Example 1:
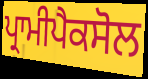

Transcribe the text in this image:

ਪ੍ਰਾਮੀਪੈਕਸੋਲ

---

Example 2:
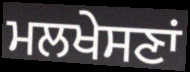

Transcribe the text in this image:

ਮਲਖੇਸਣਾਂ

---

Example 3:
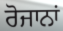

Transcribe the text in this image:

ਰੋਜਾਨਾਂ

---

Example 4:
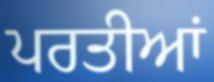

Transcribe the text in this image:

ਪਰਤੀਆਂ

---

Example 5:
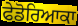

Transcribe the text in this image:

ਫੇਡੋਰਿਆਕਾ